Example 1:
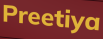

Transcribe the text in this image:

Preetiya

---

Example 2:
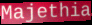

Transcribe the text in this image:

Majethia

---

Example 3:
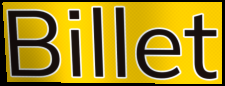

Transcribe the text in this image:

Billet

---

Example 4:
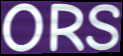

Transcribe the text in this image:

ORS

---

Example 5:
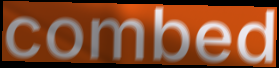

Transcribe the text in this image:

combed